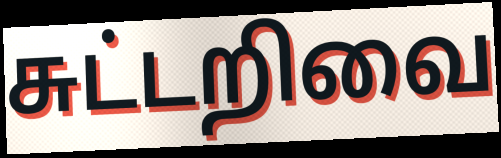
சுட்டறிவை